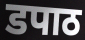
डपाठ